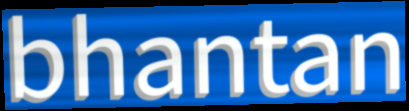
bhantan